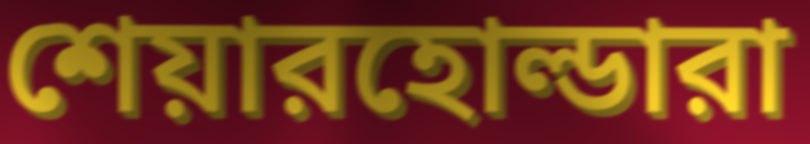
শেয়ারহোল্ডারা